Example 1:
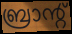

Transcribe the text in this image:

ബ്രാന്റ്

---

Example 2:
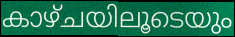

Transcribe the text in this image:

കാഴ്ചയിലൂടെയും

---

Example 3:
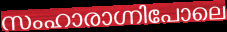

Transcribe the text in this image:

സംഹാരാഗ്നിപോലെ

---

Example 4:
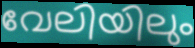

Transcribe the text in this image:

വേലിയിലും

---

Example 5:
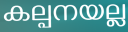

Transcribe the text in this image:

കല്പനയല്ല